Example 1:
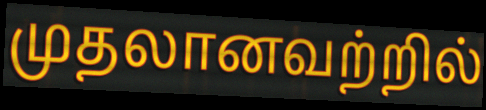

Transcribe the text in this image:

முதலானவற்றில்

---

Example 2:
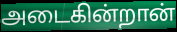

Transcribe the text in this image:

அடைகின்றான்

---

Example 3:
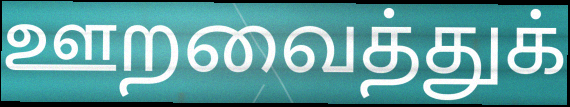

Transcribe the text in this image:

ஊறவைத்துக்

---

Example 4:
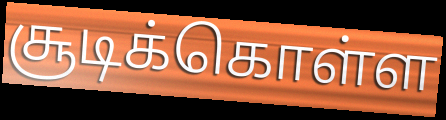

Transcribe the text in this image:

சூடிக்கொள்ள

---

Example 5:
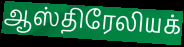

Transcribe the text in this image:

ஆஸ்திரேலியக்